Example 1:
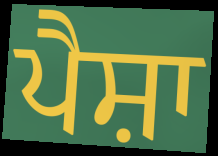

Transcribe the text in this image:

ਪੈਸ਼ਾ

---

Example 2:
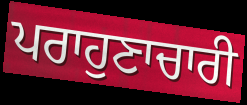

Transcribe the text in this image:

ਪਰਾਹੁਣਾਚਾਰੀ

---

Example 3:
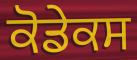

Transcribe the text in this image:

ਕੋਡੇਕਸ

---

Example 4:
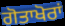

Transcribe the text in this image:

ਗੋਤਾਖੋਰਾਂ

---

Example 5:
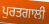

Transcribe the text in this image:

ਪੁਰਤਗਾਲੀ